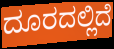
ದೂರದಲ್ಲಿದೆ